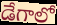
డేగాలో